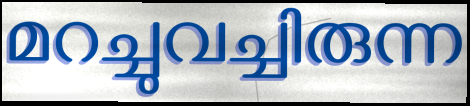
മറച്ചുവച്ചിരുന്ന